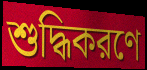
শুদ্ধিকরণে